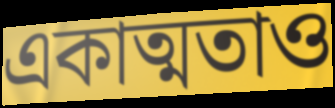
একাত্মতাও